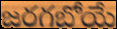
జరగబోయే